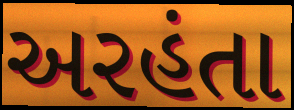
અરહંતા